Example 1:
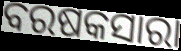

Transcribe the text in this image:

ବରଷକସାରା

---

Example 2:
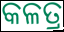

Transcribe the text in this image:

କଳତ୍ର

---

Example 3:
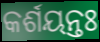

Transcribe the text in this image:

କର୍ଶୟନ୍ତଃ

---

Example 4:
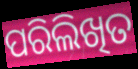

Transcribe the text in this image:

ପରିଲିଖିତ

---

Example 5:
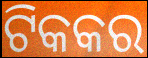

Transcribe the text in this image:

ଟିକକର